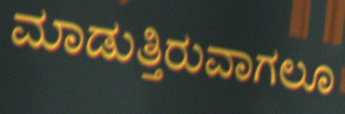
ಮಾಡುತ್ತಿರುವಾಗಲೂ